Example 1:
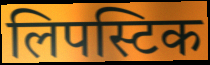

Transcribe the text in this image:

लिपस्टिक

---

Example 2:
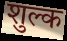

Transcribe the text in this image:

शुल्‍क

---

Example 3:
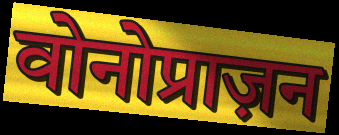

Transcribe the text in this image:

वोनोप्राज़न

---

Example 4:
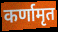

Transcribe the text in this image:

कर्णामृत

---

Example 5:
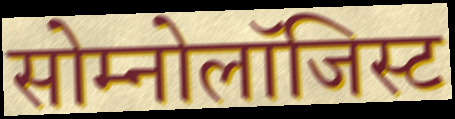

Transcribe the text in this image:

सोम्नोलॉजिस्ट